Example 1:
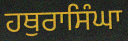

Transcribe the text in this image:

ਹਥੁਰਾਸਿੰਘਾ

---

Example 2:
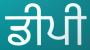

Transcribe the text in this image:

ਡੀਪੀ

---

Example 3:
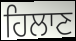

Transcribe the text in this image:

ਹਿਲਾਣ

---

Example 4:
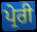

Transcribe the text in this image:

ਪ੍ਰੇਰੀ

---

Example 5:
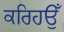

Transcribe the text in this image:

ਕਰਿਹਉਁ